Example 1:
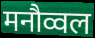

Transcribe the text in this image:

मनौव्वल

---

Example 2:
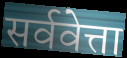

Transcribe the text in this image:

सर्ववेत्ता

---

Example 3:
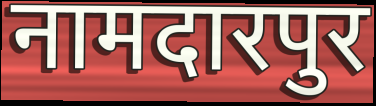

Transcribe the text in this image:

नामदारपुर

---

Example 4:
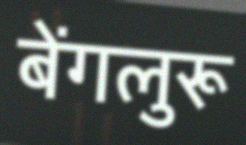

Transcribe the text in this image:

बेंगलुरू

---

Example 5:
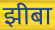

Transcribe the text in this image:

झीबा